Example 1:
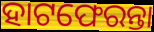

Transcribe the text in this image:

ହାଟଫେରନ୍ତା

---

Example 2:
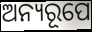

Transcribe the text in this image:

ଅନ୍ୟରୂପେ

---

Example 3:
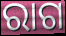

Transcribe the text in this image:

ରାଗ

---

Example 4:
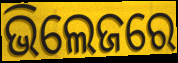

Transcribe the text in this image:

ଭିଲେଜରେ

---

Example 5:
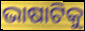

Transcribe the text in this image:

ଭାଷାଟିକୁ